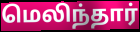
மெலிந்தார்